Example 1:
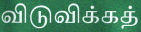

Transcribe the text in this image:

விடுவிக்கத்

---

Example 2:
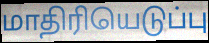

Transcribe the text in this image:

மாதிரியெடுப்பு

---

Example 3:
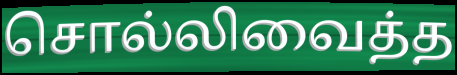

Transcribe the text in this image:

சொல்லிவைத்த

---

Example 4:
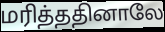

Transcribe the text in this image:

மரித்ததினாலே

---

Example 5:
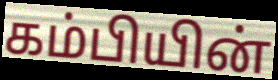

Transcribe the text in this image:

கம்பியின்